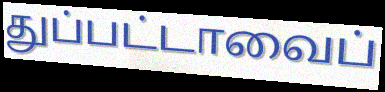
துப்பட்டாவைப்